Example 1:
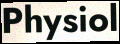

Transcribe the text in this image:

Physiol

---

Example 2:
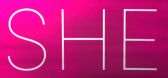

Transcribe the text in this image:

SHE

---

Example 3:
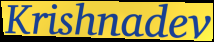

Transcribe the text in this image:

Krishnadev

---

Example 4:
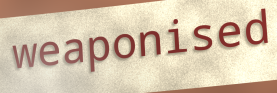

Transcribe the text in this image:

weaponised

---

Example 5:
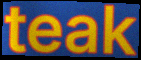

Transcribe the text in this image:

teak